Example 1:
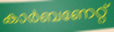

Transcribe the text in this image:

കാർബണേറ്റ്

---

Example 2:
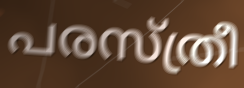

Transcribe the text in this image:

പരസ്ത്രീ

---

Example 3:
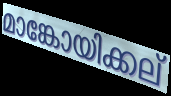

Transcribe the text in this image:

മാങ്കോയിക്കല്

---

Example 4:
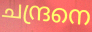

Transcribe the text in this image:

ചന്ദ്രനെ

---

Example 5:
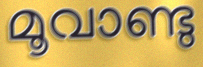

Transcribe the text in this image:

മൂവാണ്ടു